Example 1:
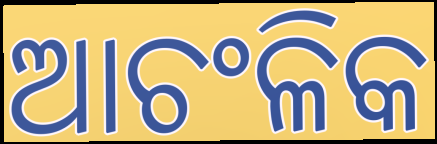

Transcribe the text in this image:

ଆଚଂଳିକ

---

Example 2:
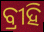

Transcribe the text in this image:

ବ୍ରୀହି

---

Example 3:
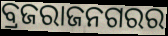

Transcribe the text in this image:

ବ୍ରଜରାଜନଗରର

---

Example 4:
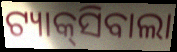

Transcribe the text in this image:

ଟ୍ୟାକ୍‌ସିବାଲା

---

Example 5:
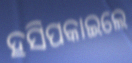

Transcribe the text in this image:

ହସିପକାଇଲେ